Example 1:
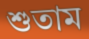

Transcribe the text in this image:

শুতাম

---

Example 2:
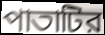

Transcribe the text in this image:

পাতাটির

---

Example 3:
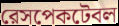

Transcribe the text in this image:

রেসপেকটেবল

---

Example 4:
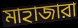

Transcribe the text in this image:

মাহাজারা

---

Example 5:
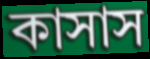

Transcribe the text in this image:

কাসাস